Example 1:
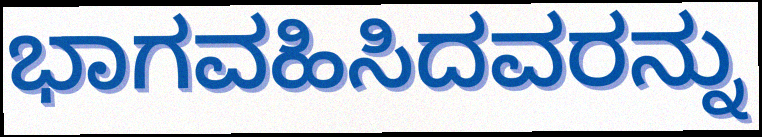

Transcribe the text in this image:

ಭಾಗವಹಿಸಿದವರನ್ನು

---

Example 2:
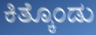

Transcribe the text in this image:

ಕಿತ್ಕೊಂಡು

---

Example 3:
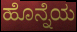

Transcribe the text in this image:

ಹೊನ್ನೆಯ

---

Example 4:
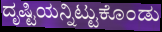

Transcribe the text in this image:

ದೃಷ್ಟಿಯನ್ನಿಟ್ಟುಕೊಂಡು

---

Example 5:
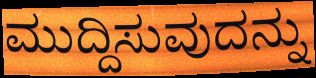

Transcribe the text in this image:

ಮುದ್ದಿಸುವುದನ್ನು